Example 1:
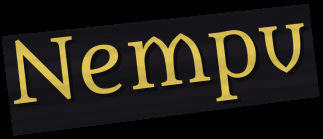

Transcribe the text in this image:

Nempu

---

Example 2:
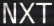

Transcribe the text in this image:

NXT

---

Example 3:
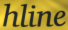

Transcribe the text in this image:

hline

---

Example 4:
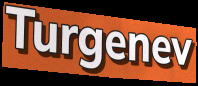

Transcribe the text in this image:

Turgenev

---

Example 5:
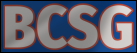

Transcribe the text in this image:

BCSG